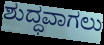
ಶುದ್ಧವಾಗಲು